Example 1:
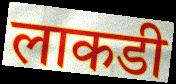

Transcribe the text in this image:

लाकडी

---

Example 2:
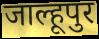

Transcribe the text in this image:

जाल्हूपुर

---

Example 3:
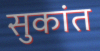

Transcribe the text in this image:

सुकांत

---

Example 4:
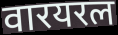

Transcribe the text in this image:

वारयरल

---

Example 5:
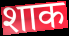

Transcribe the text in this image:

शाक